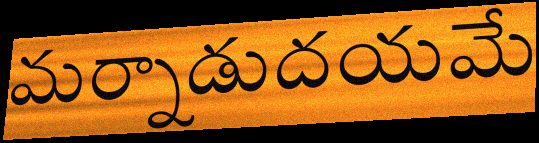
మర్నాడుదయమే